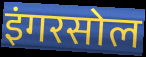
इंगरसोल